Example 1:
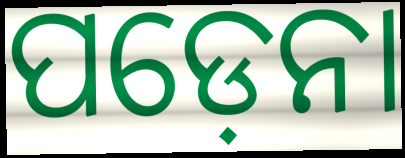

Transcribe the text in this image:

ପଡ଼େନା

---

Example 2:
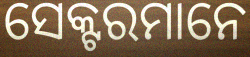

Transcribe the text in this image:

ସେକ୍ଟରମାନେ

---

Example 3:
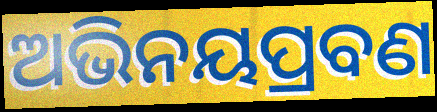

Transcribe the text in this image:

ଅଭିନୟପ୍ରବଣ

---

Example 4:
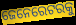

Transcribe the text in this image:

ଜେନେରେଟରକୁ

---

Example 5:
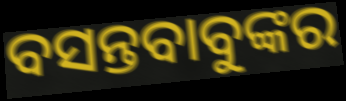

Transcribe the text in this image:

ବସନ୍ତବାବୁଙ୍କର